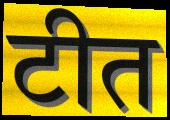
टीत